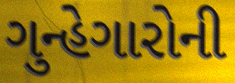
ગુન્હેગારોની